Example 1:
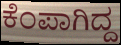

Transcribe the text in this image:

ಕೆಂಪಾಗಿದ್ದ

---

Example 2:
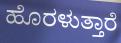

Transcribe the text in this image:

ಹೊರಳುತ್ತಾರೆ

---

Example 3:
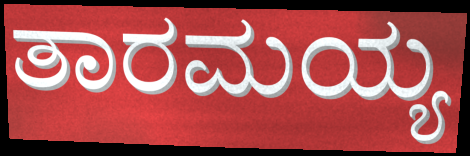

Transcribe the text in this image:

ತಾರಮಯ್ಯ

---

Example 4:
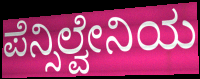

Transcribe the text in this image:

ಪೆನ್ಸಿಲ್ವೇನಿಯ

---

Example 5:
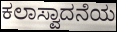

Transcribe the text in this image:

ಕಲಾಸ್ವಾದನೆಯ